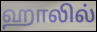
ஹாலில்